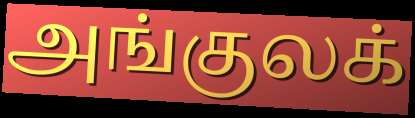
அங்குலக்